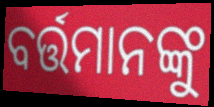
ବର୍ତ୍ତମାନଙ୍କୁ